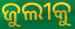
ଜୁଲୀକୁ